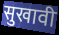
सुखावी